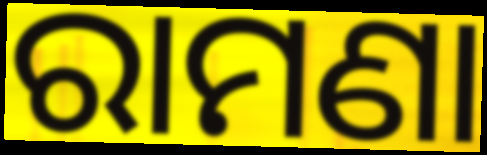
ରାମଣା